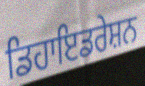
ਡਿਹਾਇਡਰੇਸ਼ਨ